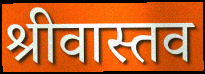
श्रीवास्तव